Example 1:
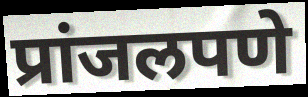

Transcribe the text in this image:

प्रांजलपणे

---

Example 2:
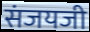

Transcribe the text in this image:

संजयजी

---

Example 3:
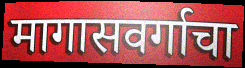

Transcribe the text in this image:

मागासवर्गाचा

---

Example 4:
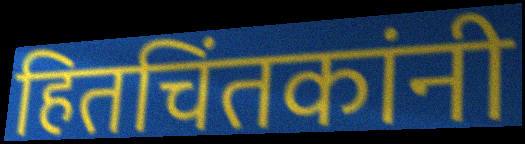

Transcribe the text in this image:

हितचिंतकांनी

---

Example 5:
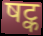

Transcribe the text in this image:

षट्क